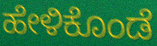
ಹೇಳಿಕೊಂಡೆ